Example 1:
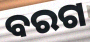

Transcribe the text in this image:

ବରଗ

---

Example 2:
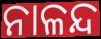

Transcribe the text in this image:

ନାଳନ୍ଦ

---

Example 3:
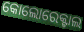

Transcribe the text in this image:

କୋଲୋରେକ୍ଟାଲ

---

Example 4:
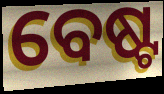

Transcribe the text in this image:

ବେଷ୍ଟ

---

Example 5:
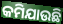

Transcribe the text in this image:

କମିଯାଉଛି